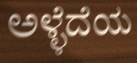
ಅಳ್ಳೆದೆಯ